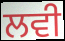
ਲਵੀ